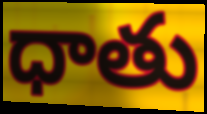
ధాతు